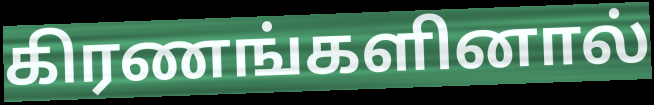
கிரணங்களினால்